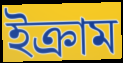
ইক্ৰাম